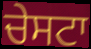
ਚੇਸਟਾ